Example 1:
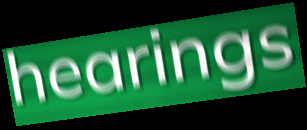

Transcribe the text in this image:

hearings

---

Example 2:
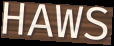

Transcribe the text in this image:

HAWS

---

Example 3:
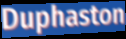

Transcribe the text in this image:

Duphaston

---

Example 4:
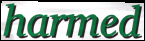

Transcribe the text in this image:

harmed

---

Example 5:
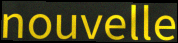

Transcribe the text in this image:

nouvelle